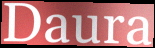
Daura